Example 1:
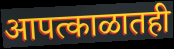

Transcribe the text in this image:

आपत्काळातही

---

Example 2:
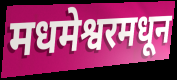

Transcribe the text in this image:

मधमेश्वरमधून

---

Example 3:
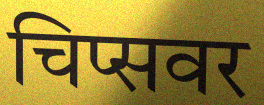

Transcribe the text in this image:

चिप्सवर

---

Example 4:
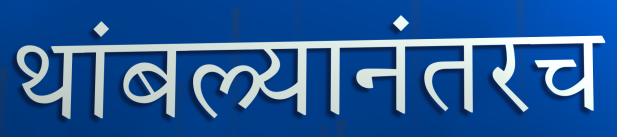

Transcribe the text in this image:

थांबल्यानंतरच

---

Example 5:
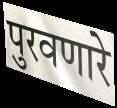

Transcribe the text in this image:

पुरवणारे